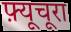
फ़्यूचूरा